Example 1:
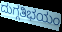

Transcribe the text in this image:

ದುಗ್ಗತಿಭಯಂ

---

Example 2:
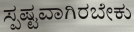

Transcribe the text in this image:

ಸ್ಪಷ್ಟವಾಗಿರಬೇಕು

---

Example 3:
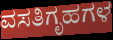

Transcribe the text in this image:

ವಸತಿಗೃಹಗಳ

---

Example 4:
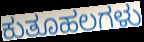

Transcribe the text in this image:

ಕುತೂಹಲಗಳು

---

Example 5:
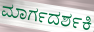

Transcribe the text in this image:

ಮಾರ್ಗದರ್ಶಕಿ